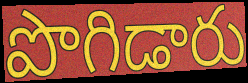
పొగిడారు